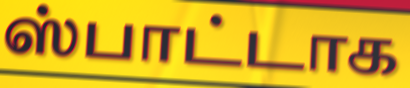
ஸ்பாட்டாக